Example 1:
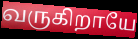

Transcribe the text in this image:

வருகிறாயே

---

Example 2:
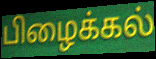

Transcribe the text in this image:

பிழைக்கல்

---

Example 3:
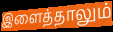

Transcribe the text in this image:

இளைத்தாலும்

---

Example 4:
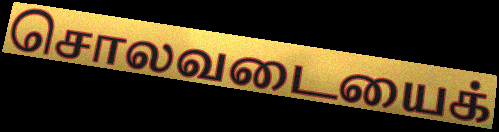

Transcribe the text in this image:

சொலவடையைக்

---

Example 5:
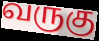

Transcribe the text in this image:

வருகு